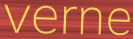
verne